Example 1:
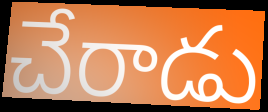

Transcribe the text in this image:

చేరాడు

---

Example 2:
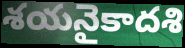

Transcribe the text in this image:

శయనైకాదశి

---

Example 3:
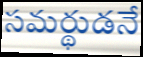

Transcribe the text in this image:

సమర్థుడనే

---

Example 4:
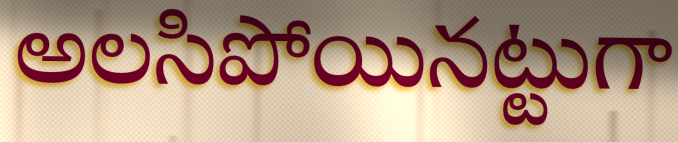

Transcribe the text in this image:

అలసిపోయినట్టుగా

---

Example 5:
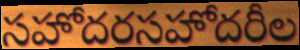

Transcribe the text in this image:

సహోదరసహోదరీల